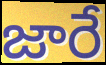
జారే